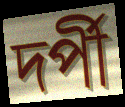
দর্পী